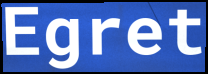
Egret